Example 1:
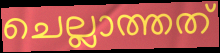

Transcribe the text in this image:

ചെല്ലാത്തത്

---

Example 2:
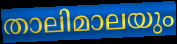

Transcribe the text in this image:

താലിമാലയും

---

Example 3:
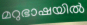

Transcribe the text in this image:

മറുഭാഷയിൽ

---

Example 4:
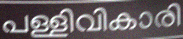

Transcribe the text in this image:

പള്ളിവികാരി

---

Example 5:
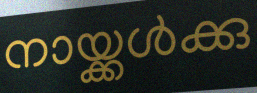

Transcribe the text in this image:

നായ്ക്കൾക്കു